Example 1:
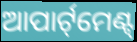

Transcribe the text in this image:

ଆପାର୍ଟ୍‌ମେଣ୍ଟ୍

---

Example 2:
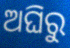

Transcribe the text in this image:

ଅଘିରୁ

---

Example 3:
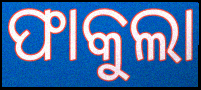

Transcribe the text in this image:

ଫାକୁଲା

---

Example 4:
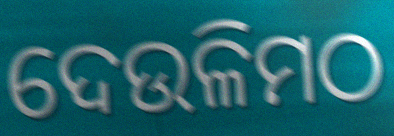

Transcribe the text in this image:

ଦେଉଳିମଠ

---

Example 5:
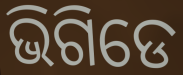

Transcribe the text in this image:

ଭିଗିଡେ